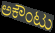
ಅಕೌಂಟು